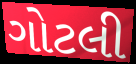
ગોટલી